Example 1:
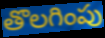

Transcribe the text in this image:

తొలగింపు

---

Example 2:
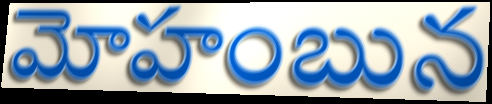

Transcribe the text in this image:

మోహంబున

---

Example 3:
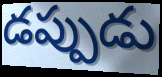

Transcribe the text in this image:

డప్పుడు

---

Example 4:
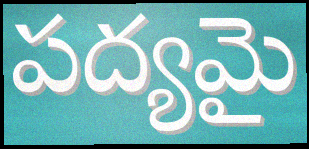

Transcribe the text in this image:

పద్యమై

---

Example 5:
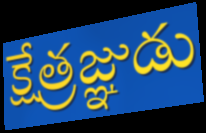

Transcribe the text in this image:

క్షేత్రజ్ఞుడు